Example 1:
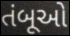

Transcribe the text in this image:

તંબૂઓ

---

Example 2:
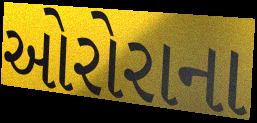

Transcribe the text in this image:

ઓરોરાના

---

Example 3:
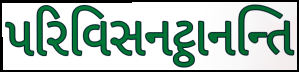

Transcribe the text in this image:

પરિવિસનટ્ઠાનન્તિ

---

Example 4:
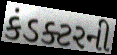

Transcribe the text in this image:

કંડક્ટરની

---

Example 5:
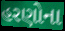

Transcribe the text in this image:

હરણોના